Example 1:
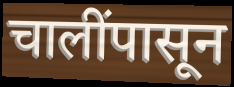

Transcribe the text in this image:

चालींपासून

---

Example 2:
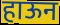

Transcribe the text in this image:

हाऊन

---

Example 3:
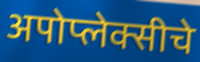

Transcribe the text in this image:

अपोप्लेक्सीचे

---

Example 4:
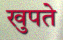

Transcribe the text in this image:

खुपते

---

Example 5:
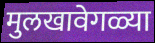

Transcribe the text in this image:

मुलखावेगळ्या